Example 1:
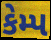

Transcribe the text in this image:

કેમ્પ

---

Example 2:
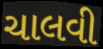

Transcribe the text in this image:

ચાલવી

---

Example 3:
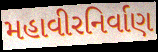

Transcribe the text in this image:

મહાવીરનિર્વાણ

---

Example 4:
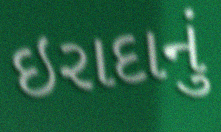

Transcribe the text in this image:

ઇરાદાનું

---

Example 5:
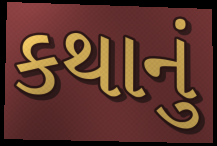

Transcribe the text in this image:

કથાનું